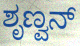
ಶೃಣ್ವನ್